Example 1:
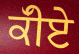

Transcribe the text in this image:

ਕੱੀਏ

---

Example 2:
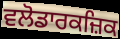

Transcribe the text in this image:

ਵਲੋਡਾਰਕਜ਼ਿਕ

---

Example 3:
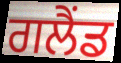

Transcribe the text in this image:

ਗਲੈਂਡ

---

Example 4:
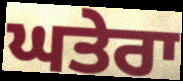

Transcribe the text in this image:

ਘਤੇਰਾ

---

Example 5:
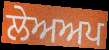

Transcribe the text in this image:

ਲੇਅਅਪ